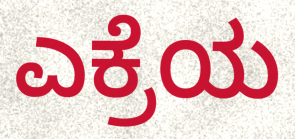
ಎಕ್ರೆಯ